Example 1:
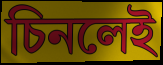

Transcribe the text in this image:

চিনলেই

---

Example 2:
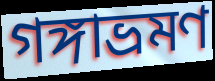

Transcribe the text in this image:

গঙ্গাভ্রমণ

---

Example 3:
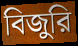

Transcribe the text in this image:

বিজুরি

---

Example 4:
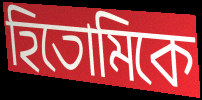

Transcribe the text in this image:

হিতোমিকে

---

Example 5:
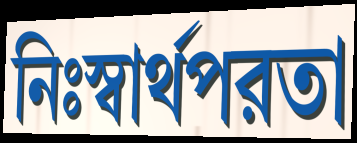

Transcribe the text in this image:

নিঃস্বার্থপরতা